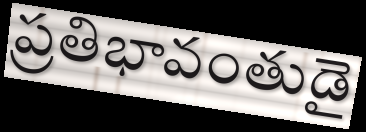
ప్రతిభావంతుడై